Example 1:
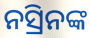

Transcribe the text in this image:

ନସ୍ରିନଙ୍କ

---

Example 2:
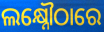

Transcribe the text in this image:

ଲକ୍ଷ୍ନୌଠାରେ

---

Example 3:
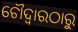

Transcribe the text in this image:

ଚୌଦ୍ୱାରଠାରୁ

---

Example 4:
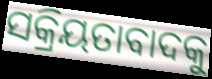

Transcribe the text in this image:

ସକ୍ରିୟତାବାଦକୁ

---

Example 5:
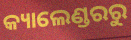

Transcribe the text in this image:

କ୍ୟାଲେଣ୍ଡରରୁ